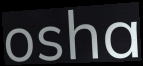
osha